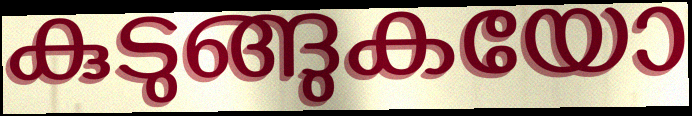
കുടുങ്ങുകയോ